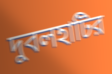
দুবলহাটির